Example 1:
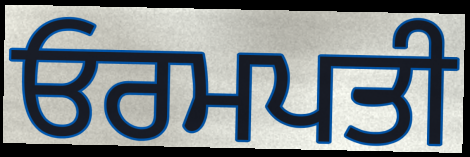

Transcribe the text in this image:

ਓਰਮਪਤੀ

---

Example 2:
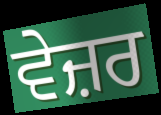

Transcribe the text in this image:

ਵੇਜ਼ਰ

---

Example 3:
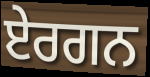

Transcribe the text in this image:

ਏਰਗਨ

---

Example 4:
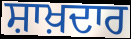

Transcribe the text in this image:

ਸ਼ਾਖ਼ਦਾਰ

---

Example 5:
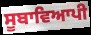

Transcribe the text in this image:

ਸੂਬਾਵਿਆਪੀ